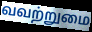
வவற்றுமை